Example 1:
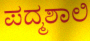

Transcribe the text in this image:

ಪದ್ಮಶಾಲಿ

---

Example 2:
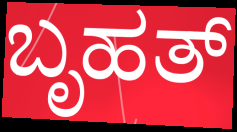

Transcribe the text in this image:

ಬೃಹತ್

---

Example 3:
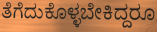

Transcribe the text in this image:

ತೆಗೆದುಕೊಳ್ಳಬೇಕಿದ್ದರೂ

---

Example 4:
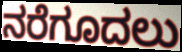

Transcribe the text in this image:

ನರೆಗೂದಲು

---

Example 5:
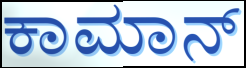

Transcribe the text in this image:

ಕಾಮಾನ್